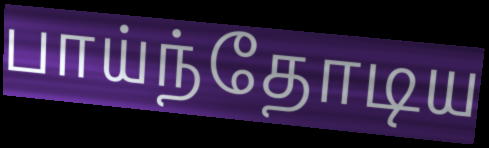
பாய்ந்தோடிய